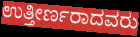
ಉತ್ತೀರ್ಣರಾದವರು